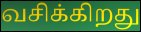
வசிக்கிறது